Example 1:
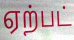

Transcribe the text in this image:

ஏற்பட்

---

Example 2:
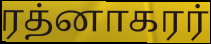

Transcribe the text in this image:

ரத்னாகரர்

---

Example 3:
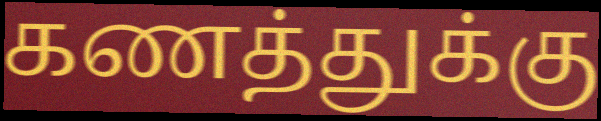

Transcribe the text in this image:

கணத்துக்கு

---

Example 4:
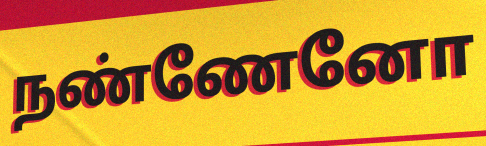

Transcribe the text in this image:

நண்ணேனோ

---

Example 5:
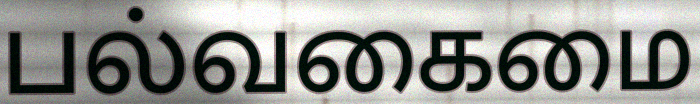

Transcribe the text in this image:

பல்வகைமை